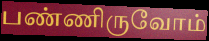
பண்ணிருவோம்